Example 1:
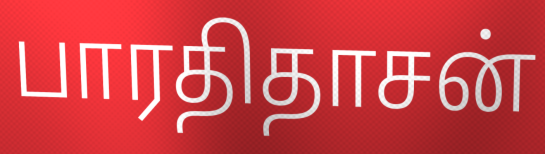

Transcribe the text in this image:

பாரதிதாசன்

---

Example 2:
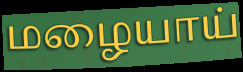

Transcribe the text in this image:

மழையாய்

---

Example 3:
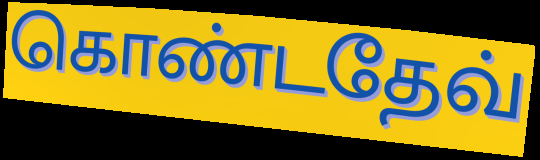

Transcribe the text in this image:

கொண்டதேவ்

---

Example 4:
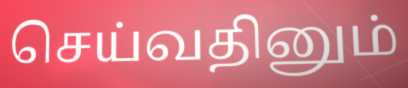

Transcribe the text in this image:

செய்வதினும்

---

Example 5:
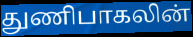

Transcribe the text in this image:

துணிபாகலின்